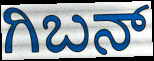
ಗಿಬನ್